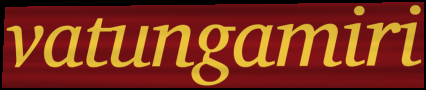
vatungamiri